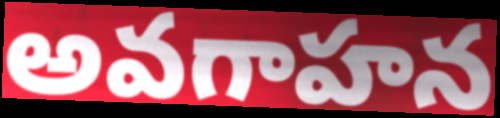
అవగాహన